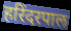
हरिंदरपाल